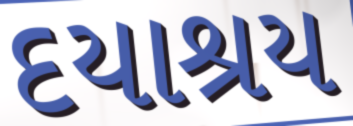
દયાશ્રય